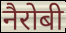
नैरोबी